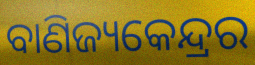
ବାଣିଜ୍ୟକେନ୍ଦ୍ରର